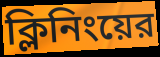
ক্লিনিংয়ের